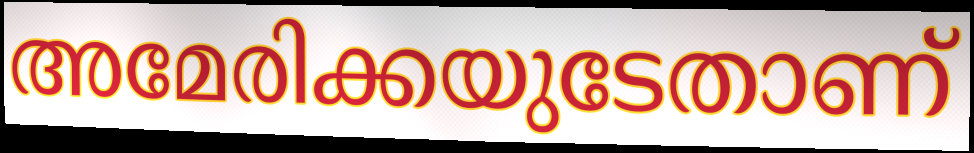
അമേരിക്കയുടേതാണ്